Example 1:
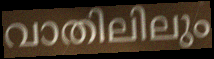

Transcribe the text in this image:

വാതിലിലും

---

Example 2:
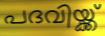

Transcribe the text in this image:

പദവിയ്ക്ക്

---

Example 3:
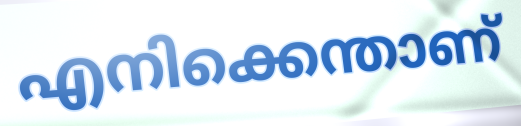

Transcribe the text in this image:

എനിക്കെന്താണ്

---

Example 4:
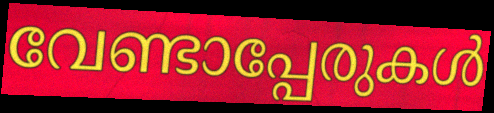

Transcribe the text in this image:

വേണ്ടാപ്പേരുകൾ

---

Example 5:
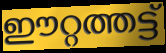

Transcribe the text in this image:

ഈറ്റത്തട്ട്